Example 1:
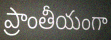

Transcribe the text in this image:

ప్రాంతీయంగా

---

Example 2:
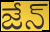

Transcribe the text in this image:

జేన్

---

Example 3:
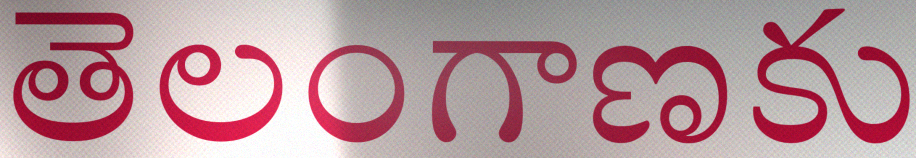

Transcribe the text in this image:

తెలంగాణకు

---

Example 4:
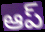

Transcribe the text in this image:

ఆప్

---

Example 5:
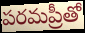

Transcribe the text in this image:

పరమప్రీతో